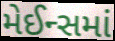
મેઈન્સમાં